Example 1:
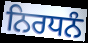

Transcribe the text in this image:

ਨਿਰਧਨੰ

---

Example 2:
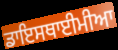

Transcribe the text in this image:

ਡਾਇਸਥਾਈਮੀਆ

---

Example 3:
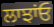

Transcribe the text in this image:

ਲਾਝਾਂਓ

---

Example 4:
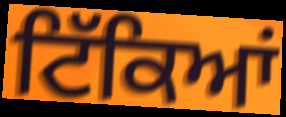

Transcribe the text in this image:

ਟਿੱਕਿਆਂ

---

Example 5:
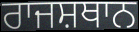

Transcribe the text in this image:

ਰਾਜਸ਼ਥਾਨ